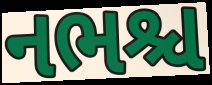
નભશ્ચ